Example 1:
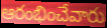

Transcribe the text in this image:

ఆరంభించేవారు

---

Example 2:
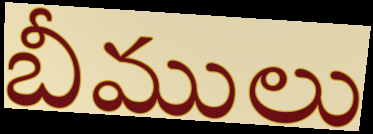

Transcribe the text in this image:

బీములు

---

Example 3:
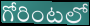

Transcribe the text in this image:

గోరింటలో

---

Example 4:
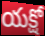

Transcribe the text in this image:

యక్షో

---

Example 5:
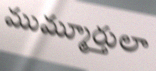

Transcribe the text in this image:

ముమ్మూర్తులా